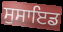
ਸੁਸਾਇਡ